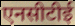
एनसीटीई